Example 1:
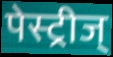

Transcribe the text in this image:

पेस्ट्रीज्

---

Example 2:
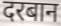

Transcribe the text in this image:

दरबान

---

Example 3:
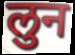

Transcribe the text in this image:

लुन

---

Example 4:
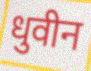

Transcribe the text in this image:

धुवीन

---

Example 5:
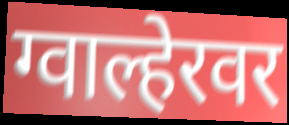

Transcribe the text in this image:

ग्वाल्हेरवर